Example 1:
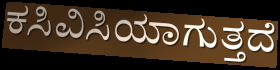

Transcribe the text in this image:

ಕಸಿವಿಸಿಯಾಗುತ್ತದೆ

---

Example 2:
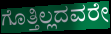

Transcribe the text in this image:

ಗೊತ್ತಿಲ್ಲದವರೇ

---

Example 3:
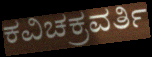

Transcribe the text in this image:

ಕವಿಚಕ್ರವರ್ತಿ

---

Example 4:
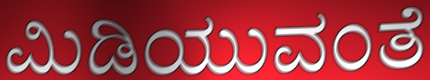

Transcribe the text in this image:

ಮಿಡಿಯುವಂತೆ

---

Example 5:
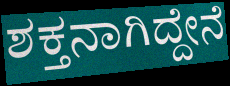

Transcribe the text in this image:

ಶಕ್ತನಾಗಿದ್ದೇನೆ